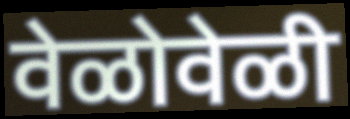
वेळोवेळी